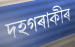
দহগৰাকীৰ